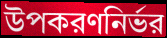
উপকরণনির্ভর